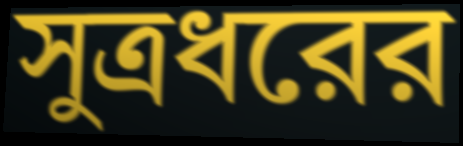
সুত্রধরের